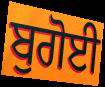
ਬੁਗੋਈ